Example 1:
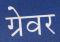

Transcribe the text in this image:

ग्रेवर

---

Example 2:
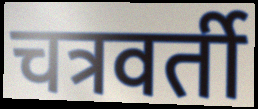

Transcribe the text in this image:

चत्रवर्ती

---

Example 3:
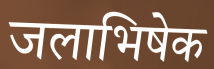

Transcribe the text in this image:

जलाभिषेक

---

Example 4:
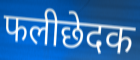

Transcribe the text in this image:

फलीछेदक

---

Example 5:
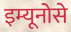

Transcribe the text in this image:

इम्यूनोसे